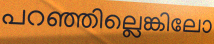
പറഞ്ഞില്ലെങ്കിലോ